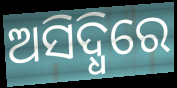
ଅସିଦ୍ଧିରେ